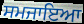
ਸਮਜਾਇਆ